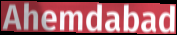
Ahemdabad